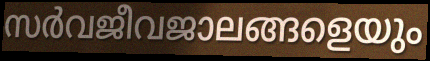
സർവജീവജാലങ്ങളെയും